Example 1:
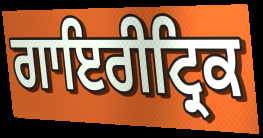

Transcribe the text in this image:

ਗਾਇਰੀਟ੍ਰਿਕ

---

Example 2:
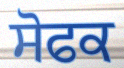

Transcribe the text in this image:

ਸੋਫਕ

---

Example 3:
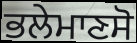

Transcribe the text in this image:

ਭਲੇਮਾਣਸੋ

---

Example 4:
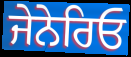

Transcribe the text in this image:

ਜੇਨੇਰਿਓ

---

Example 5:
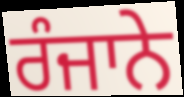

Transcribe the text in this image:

ਰੰਜਾਨੇ